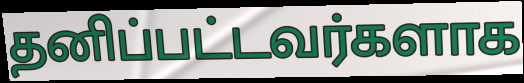
தனிப்பட்டவர்களாக